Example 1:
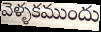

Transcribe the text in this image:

వెళ్ళకముందు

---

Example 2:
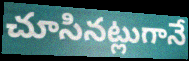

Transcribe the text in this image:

చూసినట్లుగానే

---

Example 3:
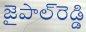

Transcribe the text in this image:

జైపాల్‌రెడ్డి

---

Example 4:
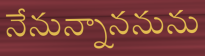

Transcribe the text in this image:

నేనున్నాననును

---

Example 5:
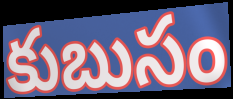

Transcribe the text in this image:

కుబుసం